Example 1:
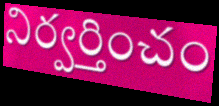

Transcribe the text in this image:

నిర్వర్తించం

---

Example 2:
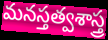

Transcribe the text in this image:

మనస్తత్వశాస్త్ర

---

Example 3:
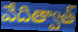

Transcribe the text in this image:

వేదిత్వాత్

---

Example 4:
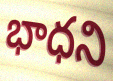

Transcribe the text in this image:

భాధని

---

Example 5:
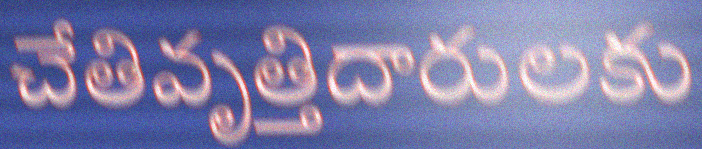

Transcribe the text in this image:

చేతివృత్తిదారులకు